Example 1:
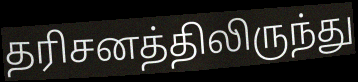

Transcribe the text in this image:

தரிசனத்திலிருந்து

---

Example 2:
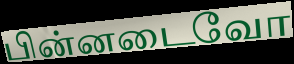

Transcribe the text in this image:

பின்னடைவோ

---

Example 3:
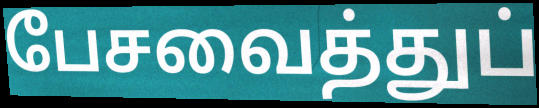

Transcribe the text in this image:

பேசவைத்துப்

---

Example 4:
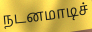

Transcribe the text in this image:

நடனமாடிச்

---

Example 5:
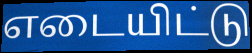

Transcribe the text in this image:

எடையிட்டு